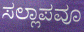
ಸಲ್ಲಾಪವೂ